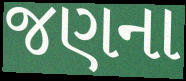
જણના